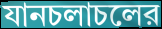
যানচলাচলের